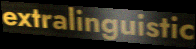
extralinguistic